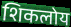
शिकलोय